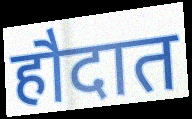
हौदात